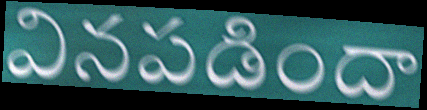
వినపడిందా